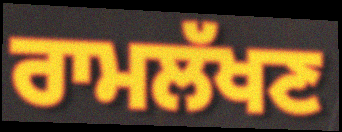
ਰਾਮਲੱਖਣ